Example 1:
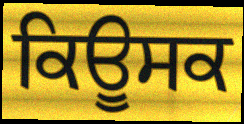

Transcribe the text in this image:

ਕਿਊਸਕ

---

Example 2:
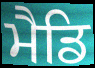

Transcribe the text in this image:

ਮੈਡਿ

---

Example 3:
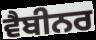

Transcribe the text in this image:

ਵੈਬੀਨਰ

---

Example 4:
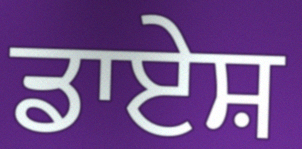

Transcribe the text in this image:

ਡਾਏਸ਼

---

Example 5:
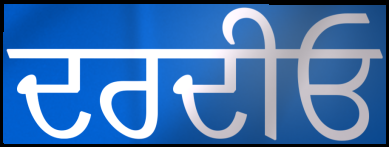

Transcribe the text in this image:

ਦਰਦੀਓ